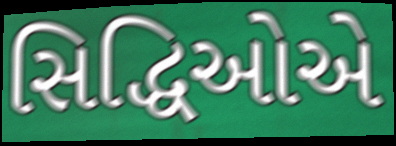
સિદ્ધિઓએ